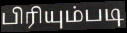
பிரியும்படி